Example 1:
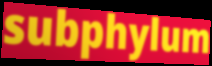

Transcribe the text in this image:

subphylum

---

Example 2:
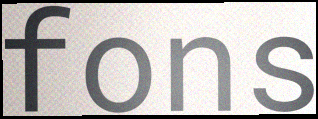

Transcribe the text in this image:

fons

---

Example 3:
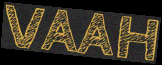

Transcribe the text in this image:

VAAH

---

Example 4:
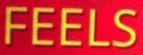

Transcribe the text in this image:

FEELS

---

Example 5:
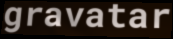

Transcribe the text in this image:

gravatar